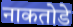
नाकतोडे